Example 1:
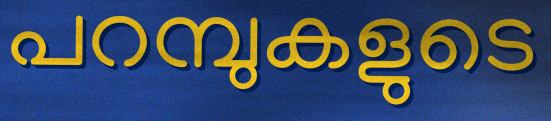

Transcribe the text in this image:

പറമ്പുകളുടെ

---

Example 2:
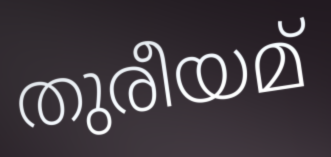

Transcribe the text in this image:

തുരീയമ്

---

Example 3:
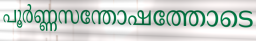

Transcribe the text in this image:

പൂർണ്ണസന്തോഷത്തോടെ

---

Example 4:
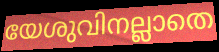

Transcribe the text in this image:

യേശുവിനല്ലാതെ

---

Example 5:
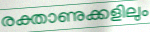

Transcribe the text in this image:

രക്താണുക്കളിലും